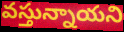
వస్తున్నాయని